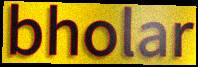
bholar